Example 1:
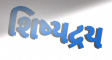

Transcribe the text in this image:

શિષ્યદ્રય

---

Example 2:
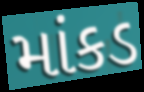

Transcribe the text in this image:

માંકડ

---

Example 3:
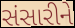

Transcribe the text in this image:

સંસારીને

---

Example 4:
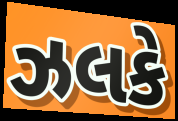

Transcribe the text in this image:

ઝલકે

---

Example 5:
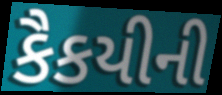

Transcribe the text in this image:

કૈકયીની